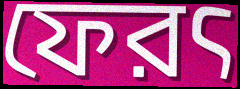
ফেরৎ